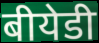
बीयेडी